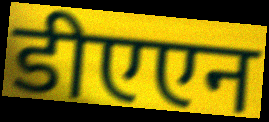
डीएएन